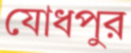
যোধপুর